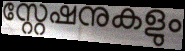
സ്റ്റേഷനുകളും